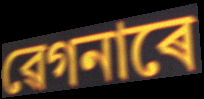
ৱেগনাৰে